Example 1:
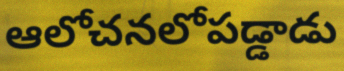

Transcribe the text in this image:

ఆలోచనలోపడ్డాడు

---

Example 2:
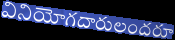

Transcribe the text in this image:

వినియోగదారులందరూ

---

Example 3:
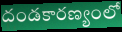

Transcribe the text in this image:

దండకారణ్యంలో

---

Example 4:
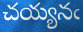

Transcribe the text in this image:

చయ్యనఁ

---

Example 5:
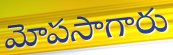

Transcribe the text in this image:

మోపసాగారు